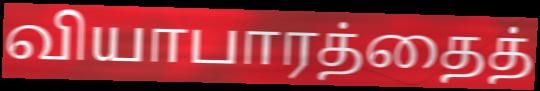
வியாபாரத்தைத்